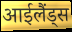
आईलैंड्स